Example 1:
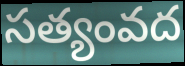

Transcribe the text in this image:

సత్యంవద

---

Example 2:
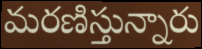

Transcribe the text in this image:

మరణిస్తున్నారు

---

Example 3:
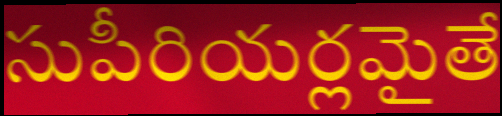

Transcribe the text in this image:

సుపీరియర్లమైతే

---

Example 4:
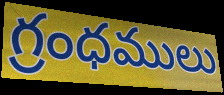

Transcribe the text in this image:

గ్రంధములు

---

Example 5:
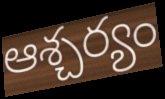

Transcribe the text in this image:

ఆశ్చర్యం